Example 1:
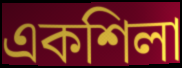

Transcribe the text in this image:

একশিলা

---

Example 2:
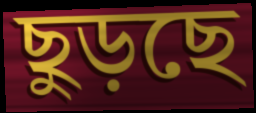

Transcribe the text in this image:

ছুড়ছে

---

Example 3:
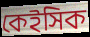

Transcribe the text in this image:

কেইসিক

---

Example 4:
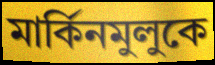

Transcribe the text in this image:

মার্কিনমুলুকে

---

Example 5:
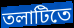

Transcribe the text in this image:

তলাটিতে